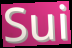
Sui